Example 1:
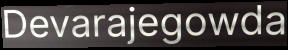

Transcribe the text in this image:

Devarajegowda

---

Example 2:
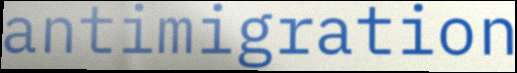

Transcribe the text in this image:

antimigration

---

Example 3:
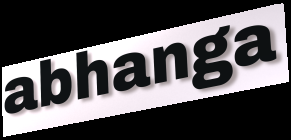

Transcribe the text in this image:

abhanga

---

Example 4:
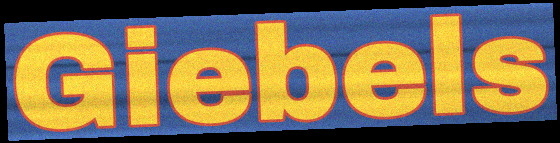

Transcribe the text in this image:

Giebels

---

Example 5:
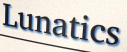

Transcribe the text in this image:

Lunatics